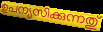
ഉപന്യസിക്കുന്നതു്